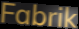
Fabrik